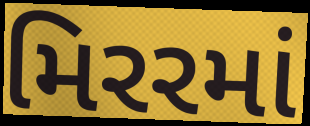
મિરરમાં